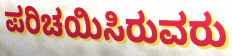
ಪರಿಚಯಿಸಿರುವರು